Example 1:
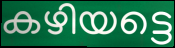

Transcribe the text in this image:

കഴിയട്ടെ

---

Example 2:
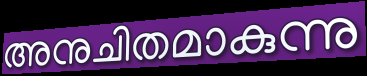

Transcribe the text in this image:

അനുചിതമാകുന്നു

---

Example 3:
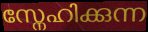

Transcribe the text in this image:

സ്നേഹിക്കുന്ന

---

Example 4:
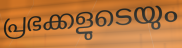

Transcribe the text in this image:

പ്രഭക്കളുടെയും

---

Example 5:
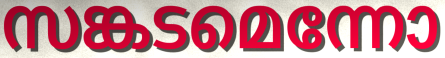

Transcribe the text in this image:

സങ്കടമെന്നോ